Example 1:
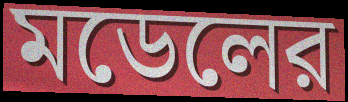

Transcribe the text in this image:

মডেলের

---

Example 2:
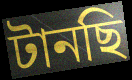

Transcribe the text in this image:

টানছি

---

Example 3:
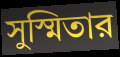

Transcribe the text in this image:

সুস্মিতার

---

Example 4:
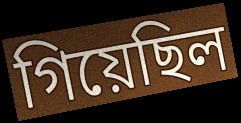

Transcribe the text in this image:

গিয়েছিল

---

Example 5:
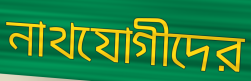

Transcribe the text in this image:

নাথযোগীদের